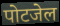
पोटजेल